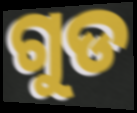
ଗୁଡ